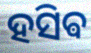
ହସିଵ